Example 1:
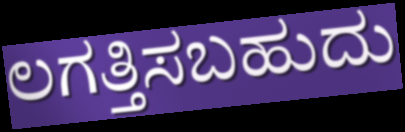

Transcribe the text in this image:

ಲಗತ್ತಿಸಬಹುದು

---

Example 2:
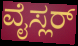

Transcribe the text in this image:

ವೈಸ್ಲರ್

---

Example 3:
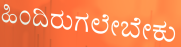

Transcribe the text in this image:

ಹಿಂದಿರುಗಲೇಬೇಕು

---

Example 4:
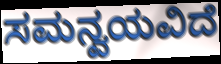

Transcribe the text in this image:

ಸಮನ್ವಯವಿದೆ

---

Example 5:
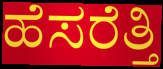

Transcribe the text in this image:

ಹೆಸರೆತ್ತಿ